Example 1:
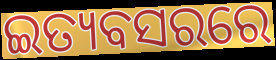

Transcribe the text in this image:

ଇତ୍ୟବସରରେ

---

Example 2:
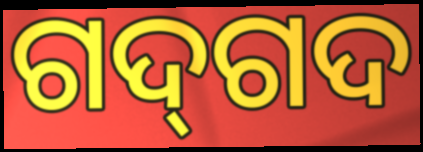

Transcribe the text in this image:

ଗଦ୍‍ଗଦ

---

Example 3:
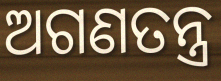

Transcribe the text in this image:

ଅଗଣତନ୍ତ୍ର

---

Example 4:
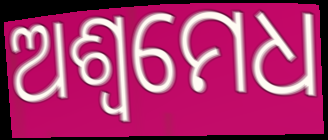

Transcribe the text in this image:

ଅଶ୍ବମେଧ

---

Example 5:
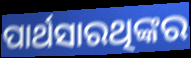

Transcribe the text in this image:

ପାର୍ଥସାରଥିଙ୍କର